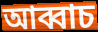
আব্বাচ